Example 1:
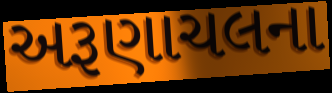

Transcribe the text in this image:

અરૂણાચલના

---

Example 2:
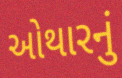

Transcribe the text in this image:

ઓથારનું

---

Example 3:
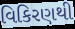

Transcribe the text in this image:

વિકિરણથી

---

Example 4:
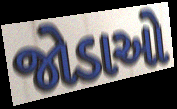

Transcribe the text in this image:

જોડાઓ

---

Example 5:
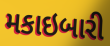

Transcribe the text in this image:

મકાઇબારી